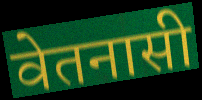
वेतनासी